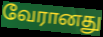
வேரானது